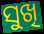
ସୁଖି